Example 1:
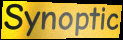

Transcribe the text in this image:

Synoptic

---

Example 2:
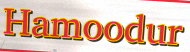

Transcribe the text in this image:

Hamoodur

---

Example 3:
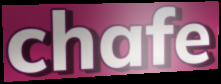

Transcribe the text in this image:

chafe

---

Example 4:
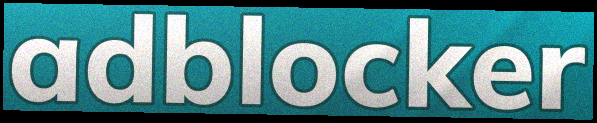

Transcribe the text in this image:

adblocker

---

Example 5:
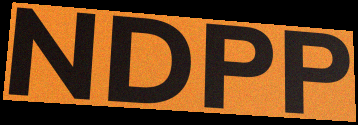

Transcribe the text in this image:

NDPP